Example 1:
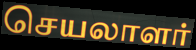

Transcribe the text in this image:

செயலாளர்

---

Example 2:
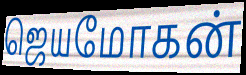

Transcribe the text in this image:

ஜெயமோகன்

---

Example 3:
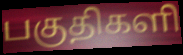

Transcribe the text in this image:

பகுதிகளி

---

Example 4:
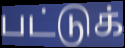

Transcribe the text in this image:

பட்டுக்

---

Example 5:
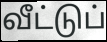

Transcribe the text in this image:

வீட்டுப்